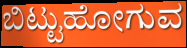
ಬಿಟ್ಟುಹೋಗುವ